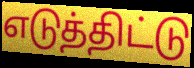
எடுத்திட்டு